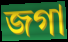
জগা